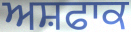
ਅਸ਼ਫਾਕ